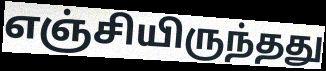
எஞ்சியிருந்தது